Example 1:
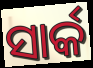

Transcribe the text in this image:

ସାର୍କ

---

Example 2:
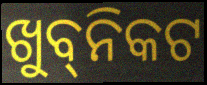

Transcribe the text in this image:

ଖୁବ୍‌ନିକଟ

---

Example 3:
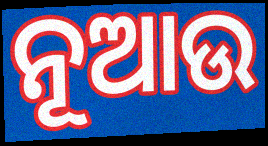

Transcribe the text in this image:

ନୂଆଉ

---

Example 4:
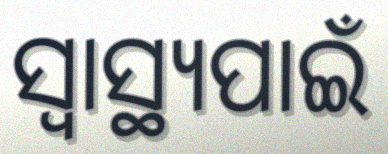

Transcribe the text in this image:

ସ୍ଵାସ୍ଥ୍ୟପାଇଁ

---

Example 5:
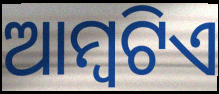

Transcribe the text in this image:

ଆମ୍ବଟିଏ